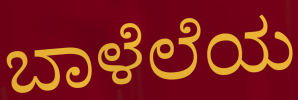
ಬಾಳೆಲೆಯ